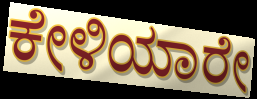
ಕೇಳಿಯಾರೇ